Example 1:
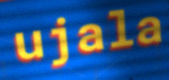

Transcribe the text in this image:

ujala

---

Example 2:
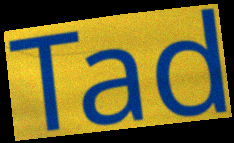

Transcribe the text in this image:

Tad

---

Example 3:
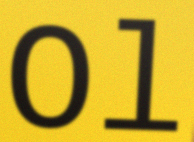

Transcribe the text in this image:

Ol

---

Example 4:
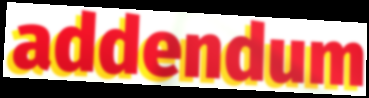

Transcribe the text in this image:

addendum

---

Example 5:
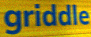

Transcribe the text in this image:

griddle